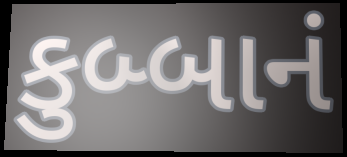
કુબ્બાનં